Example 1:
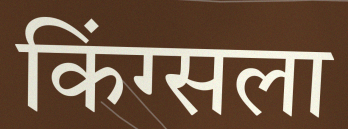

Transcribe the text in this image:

किंग्सला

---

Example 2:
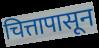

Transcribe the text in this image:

चित्तापासून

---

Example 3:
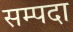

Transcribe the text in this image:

सम्पदा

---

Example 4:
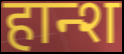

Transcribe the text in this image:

हान्श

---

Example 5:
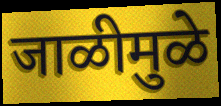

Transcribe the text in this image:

जाळीमुळे